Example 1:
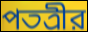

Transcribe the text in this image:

পতত্রীর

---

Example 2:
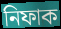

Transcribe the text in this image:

নিফাক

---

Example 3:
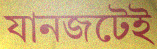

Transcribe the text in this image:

যানজটেই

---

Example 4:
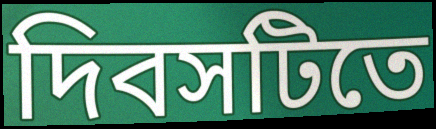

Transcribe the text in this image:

দিবসটিতে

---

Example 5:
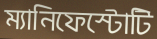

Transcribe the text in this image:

ম্যানিফেস্টোটি